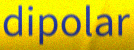
dipolar